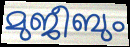
മുജീബും